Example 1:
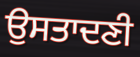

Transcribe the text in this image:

ਉਸਤਾਦਣੀ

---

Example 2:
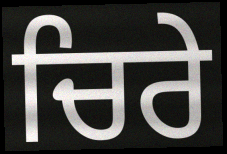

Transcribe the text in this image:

ਚਿਰੇ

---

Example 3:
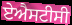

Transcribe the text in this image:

ਏਐਸਟੀਸੀ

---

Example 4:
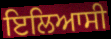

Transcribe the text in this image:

ਇਲਿਆਸੀ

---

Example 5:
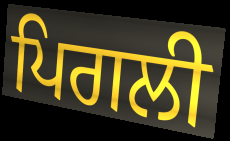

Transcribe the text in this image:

ਪਿਗਲੀ